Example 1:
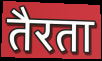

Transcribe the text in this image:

तैरता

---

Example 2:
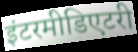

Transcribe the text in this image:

इंटरमीडिएटरी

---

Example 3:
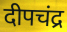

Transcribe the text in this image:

दीपचंद्र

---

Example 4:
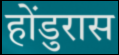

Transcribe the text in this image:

होंडुरास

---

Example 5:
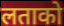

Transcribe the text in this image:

लताको